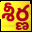
శీర్ణ